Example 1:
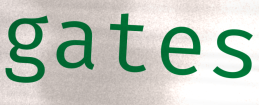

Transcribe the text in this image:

gates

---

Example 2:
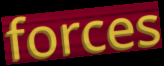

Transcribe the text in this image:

forces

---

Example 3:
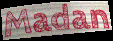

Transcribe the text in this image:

Madan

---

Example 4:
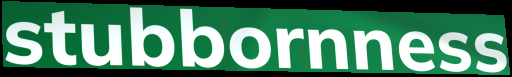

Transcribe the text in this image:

stubbornness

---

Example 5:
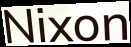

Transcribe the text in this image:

Nixon